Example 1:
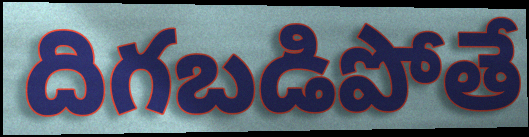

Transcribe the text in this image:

దిగబడిపోతే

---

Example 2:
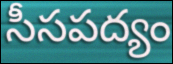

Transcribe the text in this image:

సీసపద్యం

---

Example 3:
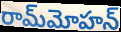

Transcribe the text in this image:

రామ్‌మోహన్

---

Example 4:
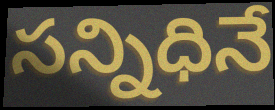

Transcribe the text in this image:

సన్నిధినే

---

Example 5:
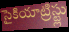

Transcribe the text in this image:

సైకియాట్రిస్ట్లు